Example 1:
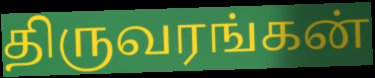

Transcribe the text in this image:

திருவரங்கன்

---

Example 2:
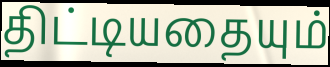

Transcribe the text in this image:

திட்டியதையும்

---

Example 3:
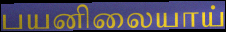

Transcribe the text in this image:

பயனிலையாய்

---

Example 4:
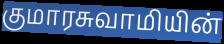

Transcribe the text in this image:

குமாரசுவாமியின்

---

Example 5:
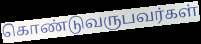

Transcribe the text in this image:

கொண்டுவருபவர்கள்